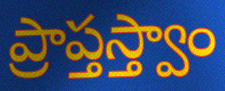
ప్రాప్తస్త్వాం